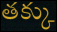
తక్కు